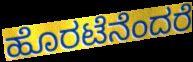
ಹೊರಟೆನೆಂದರೆ